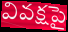
వివక్షపై